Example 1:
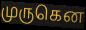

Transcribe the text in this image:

முருகென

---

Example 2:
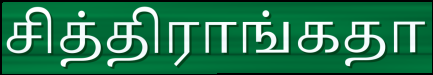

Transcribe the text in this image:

சித்திராங்கதா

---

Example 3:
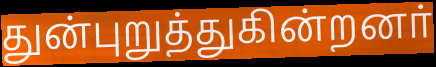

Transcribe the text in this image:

துன்புறுத்துகின்றனர்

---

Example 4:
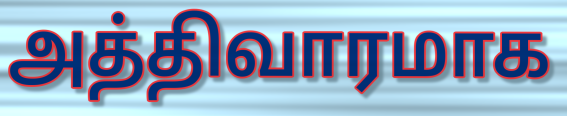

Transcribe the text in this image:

அத்திவாரமாக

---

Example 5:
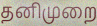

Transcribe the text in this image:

தனிமுறை